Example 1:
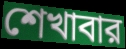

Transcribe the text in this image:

শেখাবার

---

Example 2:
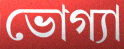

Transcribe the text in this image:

ভোগ্যা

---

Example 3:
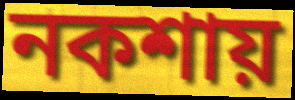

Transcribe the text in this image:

নকশায়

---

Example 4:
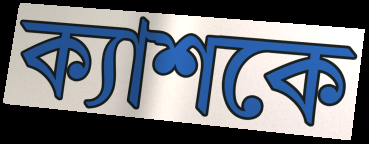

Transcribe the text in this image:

ক্যাশকে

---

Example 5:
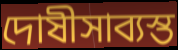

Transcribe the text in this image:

দোষীসাব্যস্ত